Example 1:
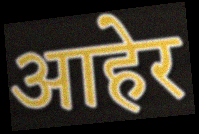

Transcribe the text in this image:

आहेर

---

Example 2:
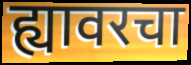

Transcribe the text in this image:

ह्यावरचा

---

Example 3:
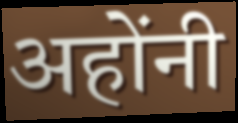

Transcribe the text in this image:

अहोंनी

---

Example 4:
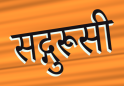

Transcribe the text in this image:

सद्गुरूसी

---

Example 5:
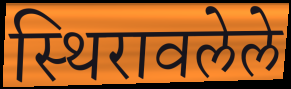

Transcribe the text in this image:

स्थिरावलेले